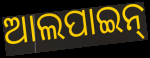
ଆଲପାଇନ୍